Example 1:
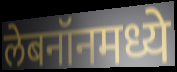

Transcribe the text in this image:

लेबनॉनमध्ये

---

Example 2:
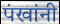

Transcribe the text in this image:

पंखांनी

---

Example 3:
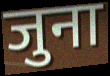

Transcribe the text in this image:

जुना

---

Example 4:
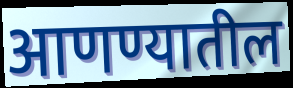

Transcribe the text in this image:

आणण्यातील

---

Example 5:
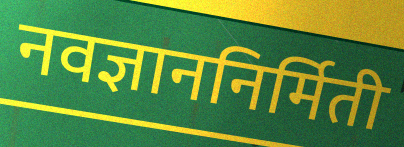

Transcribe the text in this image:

नवज्ञाननिर्मिती